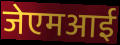
जेएमआई